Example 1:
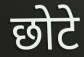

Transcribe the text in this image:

छोटे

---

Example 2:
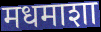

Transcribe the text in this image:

मधमाशा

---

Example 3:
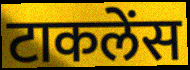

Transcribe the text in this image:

टाकलेंस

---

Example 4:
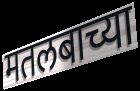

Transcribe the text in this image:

मतलबाच्या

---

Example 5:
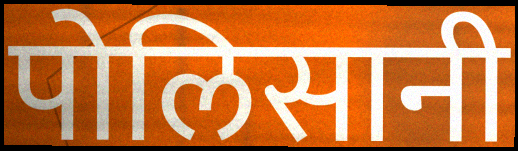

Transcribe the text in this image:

पोलिसानी